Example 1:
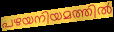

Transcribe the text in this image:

പഴയനിയമത്തിൽ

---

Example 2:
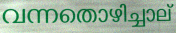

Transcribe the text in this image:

വന്നതൊഴിച്ചാല്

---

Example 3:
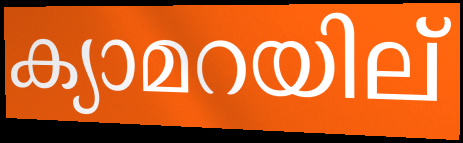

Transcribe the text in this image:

ക്യാമറയില്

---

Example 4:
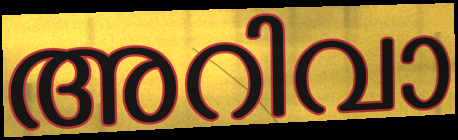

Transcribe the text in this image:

അറിവാ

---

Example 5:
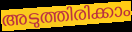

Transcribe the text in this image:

അടുത്തിരിക്കാം